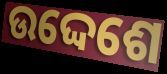
ଉଦ୍ଦେଶେ